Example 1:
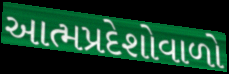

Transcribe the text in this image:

આત્મપ્રદેશોવાળો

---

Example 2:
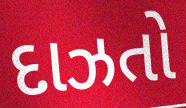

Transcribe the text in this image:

દાઝતો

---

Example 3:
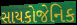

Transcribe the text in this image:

સાયકોજેનિક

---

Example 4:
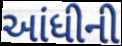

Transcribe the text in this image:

આંધીની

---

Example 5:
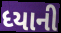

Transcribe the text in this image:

ધ્યાની